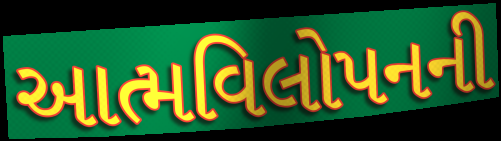
આત્મવિલોપનની